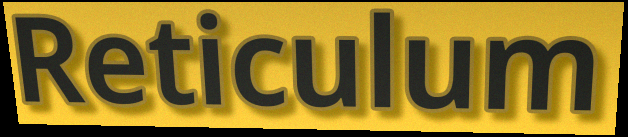
Reticulum